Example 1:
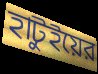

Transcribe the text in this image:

হাটুইয়ের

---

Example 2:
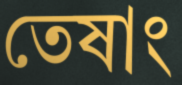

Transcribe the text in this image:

তেষাং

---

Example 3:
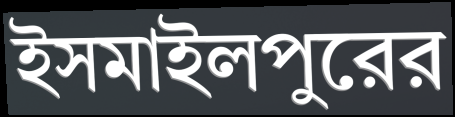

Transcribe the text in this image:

ইসমাইলপুরের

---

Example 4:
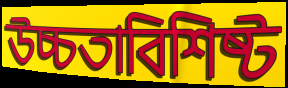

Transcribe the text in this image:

উচ্চতাবিশিষ্ট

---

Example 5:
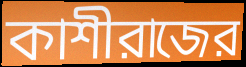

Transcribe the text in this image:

কাশীরাজের